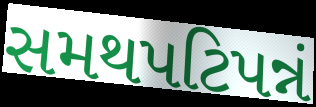
સમથપટિપન્નં